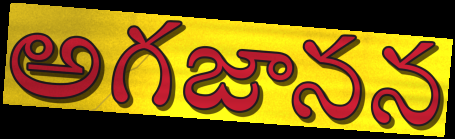
అగజానన